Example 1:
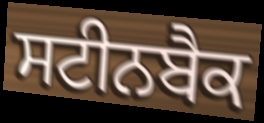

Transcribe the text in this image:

ਸਟੀਨਬੈਕ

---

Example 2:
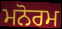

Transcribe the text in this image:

ਮਨੋਰਮ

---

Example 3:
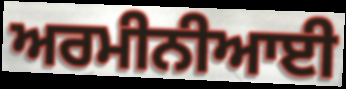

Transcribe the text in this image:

ਅਰਮੀਨੀਆਈ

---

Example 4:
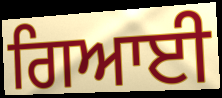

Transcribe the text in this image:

ਗਿਆਈ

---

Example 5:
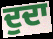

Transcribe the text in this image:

ਦੁਦਾ